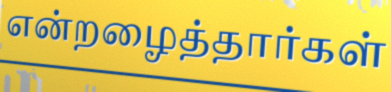
என்றழைத்தார்கள்